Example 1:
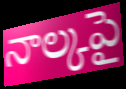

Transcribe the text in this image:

నాల్కపై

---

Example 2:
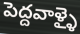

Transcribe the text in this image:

పెద్దవాళ్ళై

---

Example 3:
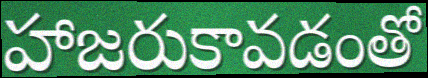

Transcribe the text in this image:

హాజరుకావడంతో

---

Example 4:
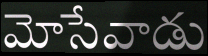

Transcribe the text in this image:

మోసేవాడు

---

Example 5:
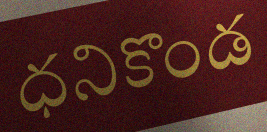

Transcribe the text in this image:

ధనికొండ